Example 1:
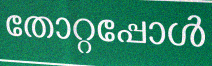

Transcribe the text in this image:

തോറ്റപ്പോൾ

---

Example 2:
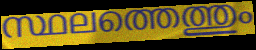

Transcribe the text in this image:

സ്ഥലത്തെത്തും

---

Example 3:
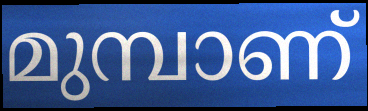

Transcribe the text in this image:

മുമ്പാണ്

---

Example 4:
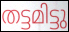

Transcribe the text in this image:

തട്ടമിട്ടു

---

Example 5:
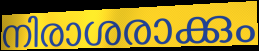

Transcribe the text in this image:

നിരാശരാക്കും